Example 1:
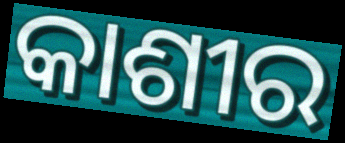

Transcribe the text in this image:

କାଶୀର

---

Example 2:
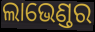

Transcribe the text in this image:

ଲାଭେଣ୍ଡର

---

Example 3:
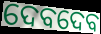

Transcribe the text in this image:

ଦେବଦେବ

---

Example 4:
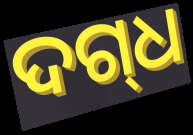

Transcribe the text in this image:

ଦଗ୍‍ଧ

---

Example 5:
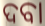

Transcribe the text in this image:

ଦବା